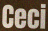
Ceci